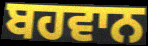
ਬਹਵਾਨ